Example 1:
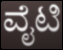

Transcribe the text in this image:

ವೈಟಿ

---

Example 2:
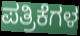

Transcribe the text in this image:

ಪತ್ರಿಕೆಗಳ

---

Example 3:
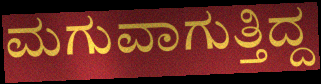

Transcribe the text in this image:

ಮಗುವಾಗುತ್ತಿದ್ದ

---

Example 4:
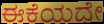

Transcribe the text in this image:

ಈಕೆಯದೇ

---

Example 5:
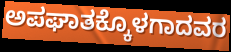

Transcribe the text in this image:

ಅಪಘಾತಕ್ಕೊಳಗಾದವರ